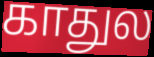
காதுல